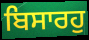
ਬਿਸਾਰਹੁ